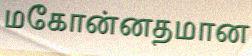
மகோன்னதமான